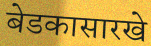
बेडकासारखे